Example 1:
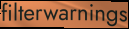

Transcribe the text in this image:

filterwarnings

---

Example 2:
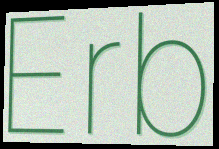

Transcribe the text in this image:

Erb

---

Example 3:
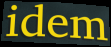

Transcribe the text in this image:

idem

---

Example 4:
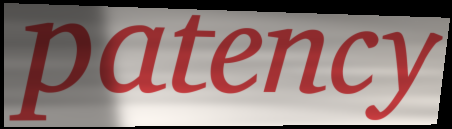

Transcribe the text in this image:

patency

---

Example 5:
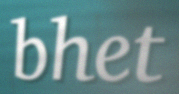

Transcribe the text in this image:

bhet